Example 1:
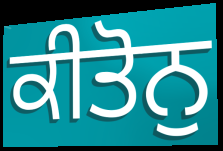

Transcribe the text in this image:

ਕੀਤੋਨੁ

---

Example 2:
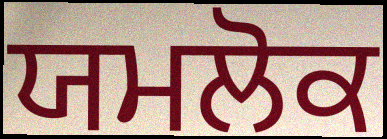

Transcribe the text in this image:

ਯਮਲੋਕ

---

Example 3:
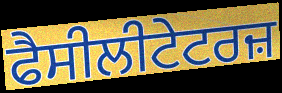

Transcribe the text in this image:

ਫੈਸੀਲੀਟੇਟਰਜ਼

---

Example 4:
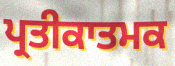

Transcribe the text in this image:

ਪ੍ਰਤੀਕਾਤਮਕ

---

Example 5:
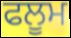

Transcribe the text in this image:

ਫਲੂਮ